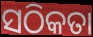
ସଠିକତା